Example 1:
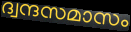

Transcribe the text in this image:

ദ്വന്ദസമാസം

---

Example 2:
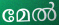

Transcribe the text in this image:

മേൽ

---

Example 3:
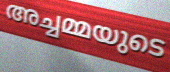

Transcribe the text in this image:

അച്ചമ്മയുടെ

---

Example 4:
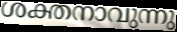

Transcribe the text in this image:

ശക്തനാവുന്നു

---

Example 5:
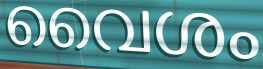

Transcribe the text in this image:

വൈശം